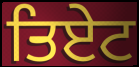
ਤਿਏਟ